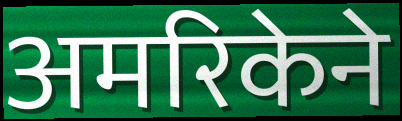
अमरिकेने